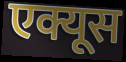
एक्यूस